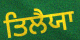
ਤਿਲੈਯਾ